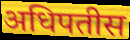
अधिपतीस